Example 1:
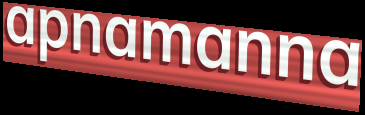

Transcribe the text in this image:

apnamanna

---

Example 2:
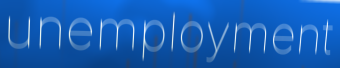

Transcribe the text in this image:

unemployment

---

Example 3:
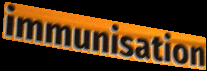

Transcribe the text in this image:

immunisation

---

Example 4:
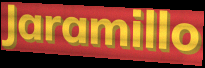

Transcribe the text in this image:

Jaramillo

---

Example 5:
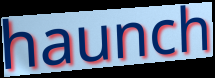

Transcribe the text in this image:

haunch